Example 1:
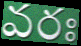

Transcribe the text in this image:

వరః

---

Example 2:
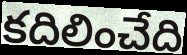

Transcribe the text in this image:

కదిలించేది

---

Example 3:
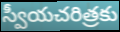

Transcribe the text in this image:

స్వీయచరిత్రకు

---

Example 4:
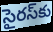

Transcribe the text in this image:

సైరస్‌కు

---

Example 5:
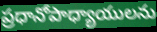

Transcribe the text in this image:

ప్రధానోపాధ్యాయులను